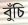
বুঁচি